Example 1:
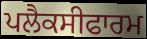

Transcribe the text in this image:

ਪਲੈਕਸੀਫਾਰਮ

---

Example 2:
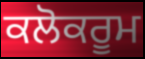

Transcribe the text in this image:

ਕਲੋਕਰੂਮ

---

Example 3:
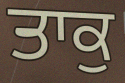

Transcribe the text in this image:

ਤਾਕੁ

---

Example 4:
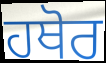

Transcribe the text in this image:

ਹਥੋਰ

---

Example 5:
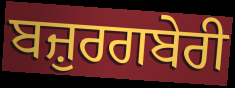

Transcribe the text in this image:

ਬਜ਼ੁਰਗਬੇਰੀ